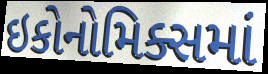
ઇકોનોમિક્સમાં